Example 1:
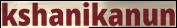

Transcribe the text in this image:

kshanikanun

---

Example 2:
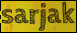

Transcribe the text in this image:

sarjak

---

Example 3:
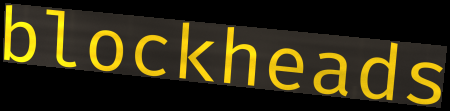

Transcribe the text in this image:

blockheads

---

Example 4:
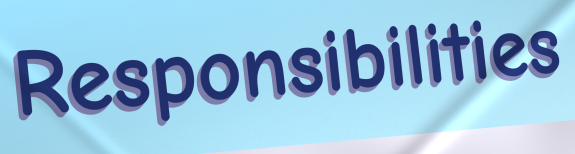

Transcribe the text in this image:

Responsibilities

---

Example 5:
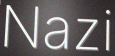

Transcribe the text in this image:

Nazi